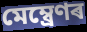
মেম্ব্ৰেণৰ